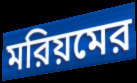
মরিয়মের